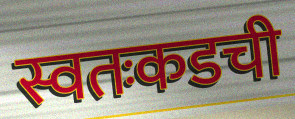
स्वतःकडची